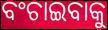
ବଂଚାଇବାକୁ